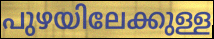
പുഴയിലേക്കുള്ള